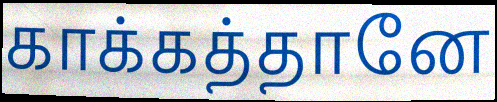
காக்கத்தானே